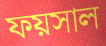
ফয়সাল